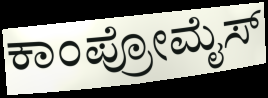
ಕಾಂಪ್ರೋಮೈಸ್